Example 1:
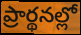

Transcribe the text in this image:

ప్రార్థనల్లో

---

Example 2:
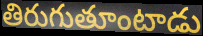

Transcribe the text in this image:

తిరుగుతూంటాడు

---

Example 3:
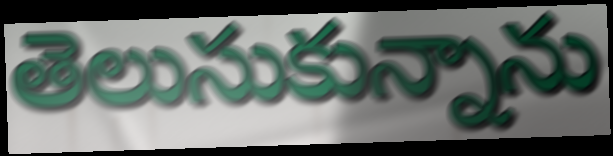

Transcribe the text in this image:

తెలుసుకున్నాను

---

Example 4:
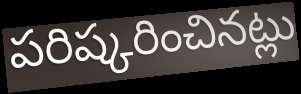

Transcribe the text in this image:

పరిష్కరించినట్లు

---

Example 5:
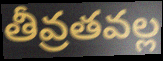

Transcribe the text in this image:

తీవ్రతవల్ల